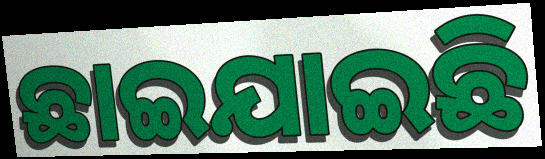
ଛାଇଯାଇଛି